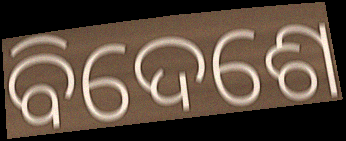
ବିଦେଶେ